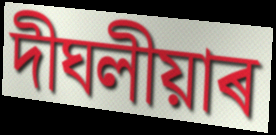
দীঘলীয়াৰ